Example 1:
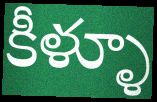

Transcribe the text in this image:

కీళ్ళూ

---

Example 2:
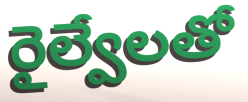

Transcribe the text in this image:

రైల్వేలతో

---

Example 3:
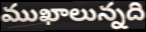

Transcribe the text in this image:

ముఖాలున్నది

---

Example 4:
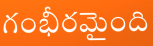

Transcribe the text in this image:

గంభీరమైంది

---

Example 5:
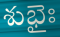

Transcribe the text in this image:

శుభైః